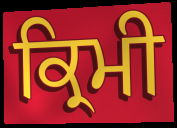
ਕ੍ਰਿਮੀ